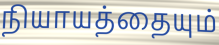
நியாயத்தையும்